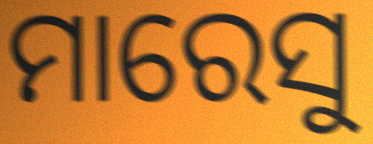
ମାରେସୁ